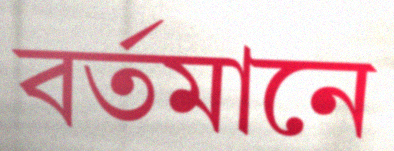
বর্তমানে